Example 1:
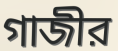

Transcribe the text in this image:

গাজীর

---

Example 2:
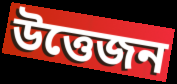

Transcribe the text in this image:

উত্তেজন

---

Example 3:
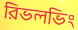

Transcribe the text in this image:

রিভলভিং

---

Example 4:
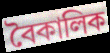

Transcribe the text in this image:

বৈকালিক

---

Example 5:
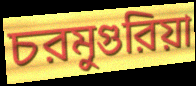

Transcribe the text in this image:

চরমুগুরিয়া